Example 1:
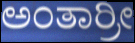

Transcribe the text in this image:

ಅಂತಾರ್ರೀ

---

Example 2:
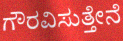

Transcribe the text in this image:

ಗೌರವಿಸುತ್ತೇನೆ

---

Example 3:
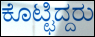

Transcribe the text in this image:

ಕೊಟ್ಟಿದ್ದರು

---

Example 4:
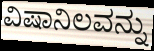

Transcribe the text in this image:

ವಿಷಾನಿಲವನ್ನು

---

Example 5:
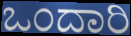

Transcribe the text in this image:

ಒಂದಾರಿ